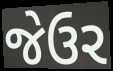
જેઉર